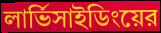
লার্ভিসাইডিংয়ের